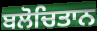
ਬਲੋਚਿਤਾਨ